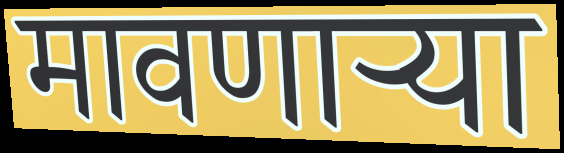
मावणाऱ्या